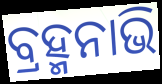
ବ୍ରହ୍ମନାଭି